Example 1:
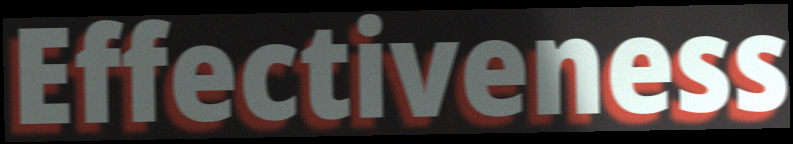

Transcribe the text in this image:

Effectiveness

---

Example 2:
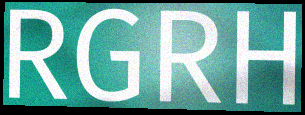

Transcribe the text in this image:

RGRH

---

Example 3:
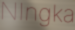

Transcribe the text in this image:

NIngka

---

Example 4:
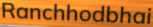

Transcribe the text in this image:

Ranchhodbhai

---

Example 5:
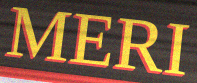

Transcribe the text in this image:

MERI